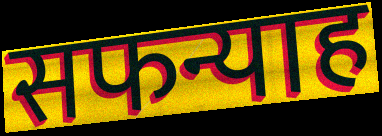
सफन्याह